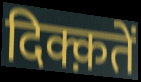
दिक्क़तें